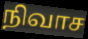
நிவாச